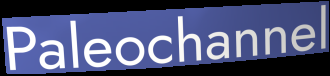
Paleochannel